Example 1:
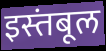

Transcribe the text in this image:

इस्तंबूल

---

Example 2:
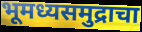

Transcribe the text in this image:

भूमध्यसमुद्राचा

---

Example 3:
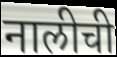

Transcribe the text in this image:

नालीची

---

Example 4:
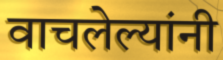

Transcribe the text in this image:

वाचलेल्यांनी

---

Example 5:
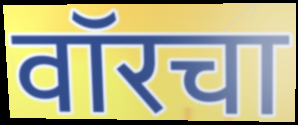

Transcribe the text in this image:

वॉरचा